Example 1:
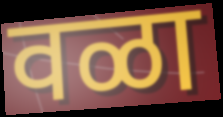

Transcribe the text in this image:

वळा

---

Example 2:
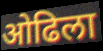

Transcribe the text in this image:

ओढिला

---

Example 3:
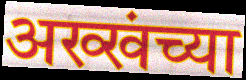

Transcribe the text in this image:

अख्खंच्या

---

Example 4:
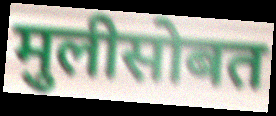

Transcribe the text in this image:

मुलीसोबत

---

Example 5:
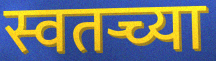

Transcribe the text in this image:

स्वतर्‍च्या